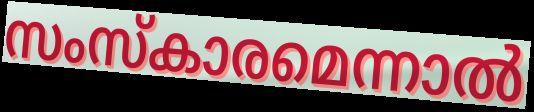
സംസ്കാരമെന്നാൽ